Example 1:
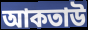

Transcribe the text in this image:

আকতাউ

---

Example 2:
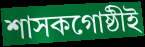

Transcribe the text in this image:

শাসকগোষ্ঠীই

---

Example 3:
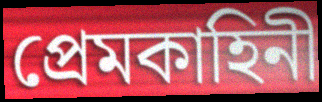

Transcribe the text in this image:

প্রেমকাহিনী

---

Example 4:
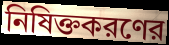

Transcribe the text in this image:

নিষিক্তকরণের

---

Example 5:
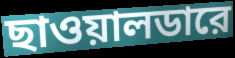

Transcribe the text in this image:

ছাওয়ালডারে